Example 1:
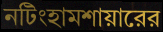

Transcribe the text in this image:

নটিংহামশায়ারের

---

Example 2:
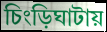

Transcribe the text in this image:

চিংড়িঘাটায়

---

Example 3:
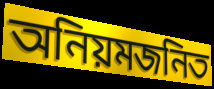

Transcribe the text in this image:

অনিয়মজনিত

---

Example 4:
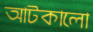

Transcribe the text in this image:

আটকালো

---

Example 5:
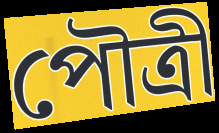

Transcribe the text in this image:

পৌত্রী